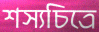
শস্যচিত্রে